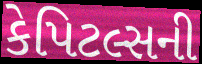
કેપિટલ્સની